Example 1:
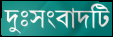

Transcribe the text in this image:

দুঃসংবাদটি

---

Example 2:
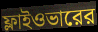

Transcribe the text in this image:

ফ্লাইওভারের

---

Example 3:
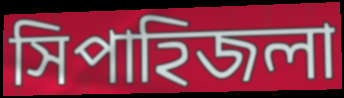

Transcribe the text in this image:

সিপাহিজলা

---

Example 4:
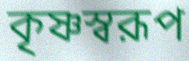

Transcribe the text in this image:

কৃষ্ণস্বরূপ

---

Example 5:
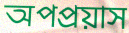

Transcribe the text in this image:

অপপ্রয়াস